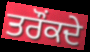
ਤਰੌਂਕਦੇ